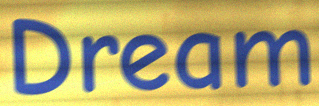
Dream